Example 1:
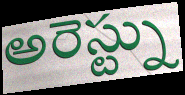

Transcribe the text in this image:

అరెస్ట్ను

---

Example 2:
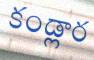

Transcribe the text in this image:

కండ్లార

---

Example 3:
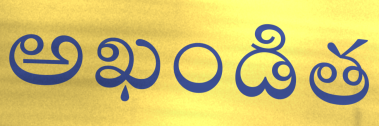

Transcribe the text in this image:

అఖండిత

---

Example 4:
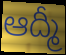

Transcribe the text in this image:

ఆద్మీ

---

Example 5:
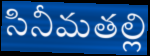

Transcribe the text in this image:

సినీమతల్లి